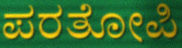
ಪರತೋಪಿ